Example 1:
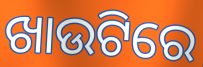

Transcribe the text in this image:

ଖାଉଟିରେ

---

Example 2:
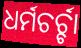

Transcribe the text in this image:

ଧର୍ମଚର୍ଚ୍ଚା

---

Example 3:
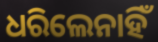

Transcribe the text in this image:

ଧରିଲେନାହିଁ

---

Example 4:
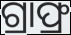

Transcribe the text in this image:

ଗ୍ରାଫ୍ର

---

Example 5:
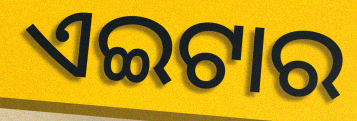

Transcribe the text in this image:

ଏଇଟାର